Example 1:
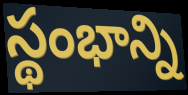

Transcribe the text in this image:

స్థంభాన్ని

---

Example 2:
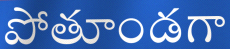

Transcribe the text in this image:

పోతూండగా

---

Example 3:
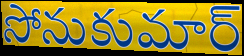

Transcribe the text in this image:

సోనుకుమార్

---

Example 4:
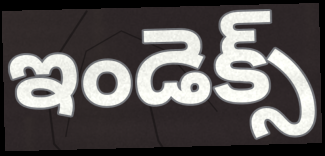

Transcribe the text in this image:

ఇండెక్స్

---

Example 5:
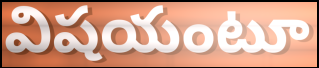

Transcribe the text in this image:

విషయంటూ